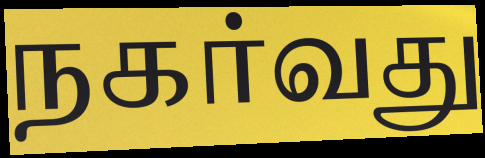
நகர்வது